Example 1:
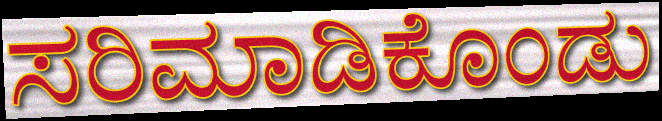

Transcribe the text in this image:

ಸರಿಮಾಡಿಕೊಂಡು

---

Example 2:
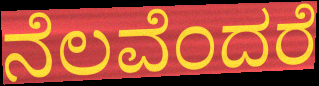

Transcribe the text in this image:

ನೆಲವೆಂದರೆ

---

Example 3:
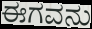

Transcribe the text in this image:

ಈಗವನು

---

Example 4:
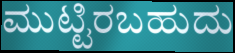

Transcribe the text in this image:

ಮುಟ್ಟಿರಬಹುದು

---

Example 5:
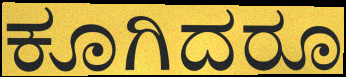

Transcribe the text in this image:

ಕೂಗಿದರೂ